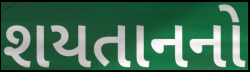
શયતાનનો